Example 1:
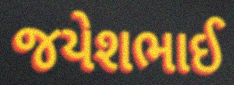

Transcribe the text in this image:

જયેશભાઈ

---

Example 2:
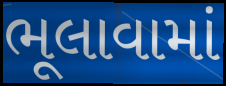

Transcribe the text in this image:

ભૂલાવામાં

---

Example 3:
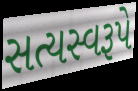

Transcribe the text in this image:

સત્યસ્વરૂપે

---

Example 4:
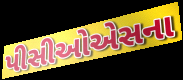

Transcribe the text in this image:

પીસીઓએસના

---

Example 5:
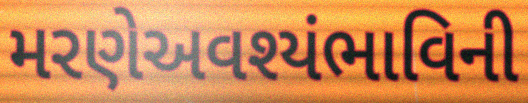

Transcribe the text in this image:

મરણેઅવશ્યંભાવિની